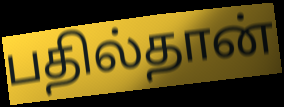
பதில்தான்